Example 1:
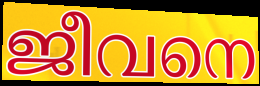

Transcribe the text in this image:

ജീവനെ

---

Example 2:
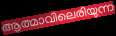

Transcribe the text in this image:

ആത്മാവിലെരിയുന്ന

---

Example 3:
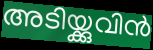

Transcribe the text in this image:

അടിയ്ക്കുവിൻ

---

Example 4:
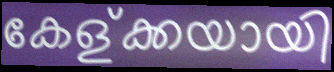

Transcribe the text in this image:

കേള്ക്കയായി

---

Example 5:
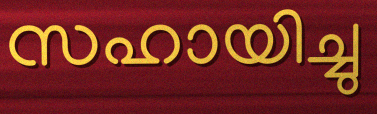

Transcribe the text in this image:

സഹായിച്ചു